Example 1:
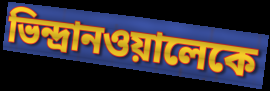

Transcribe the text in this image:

ভিন্দ্রানওয়ালেকে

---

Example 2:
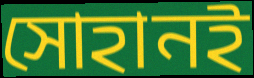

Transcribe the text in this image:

সোহানই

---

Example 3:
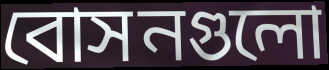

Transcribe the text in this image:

বোসনগুলো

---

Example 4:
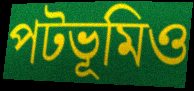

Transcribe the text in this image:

পটভূমিও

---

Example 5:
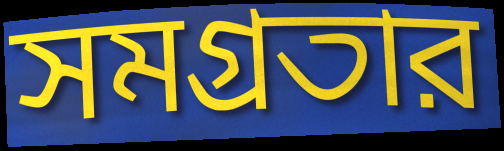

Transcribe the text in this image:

সমগ্রতার